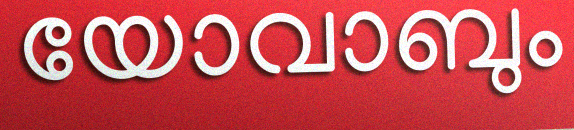
യോവാബും